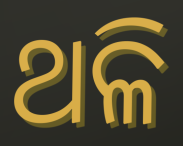
ଥଳି